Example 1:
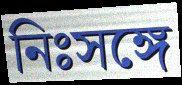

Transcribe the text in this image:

নিঃসঙ্গে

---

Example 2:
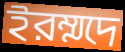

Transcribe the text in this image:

ইরম্মদে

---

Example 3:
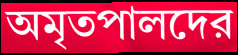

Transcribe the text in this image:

অমৃতপালদের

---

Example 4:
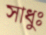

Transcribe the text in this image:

সাধুঃ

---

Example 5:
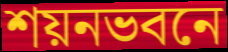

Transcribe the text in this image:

শয়নভবনে